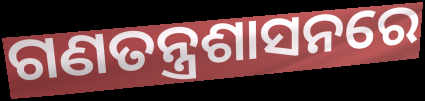
ଗଣତନ୍ତ୍ରଶାସନରେ